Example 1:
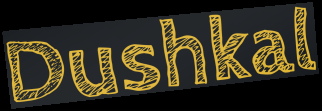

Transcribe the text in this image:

Dushkal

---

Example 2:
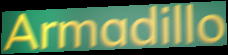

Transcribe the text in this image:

Armadillo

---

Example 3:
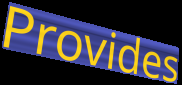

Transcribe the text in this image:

Provides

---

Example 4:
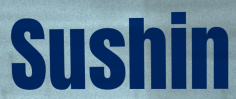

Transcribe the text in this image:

Sushin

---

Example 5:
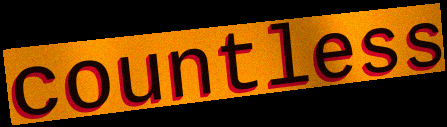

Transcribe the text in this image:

countless